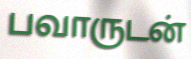
பவாருடன்